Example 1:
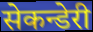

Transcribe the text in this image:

सेकन्डेरी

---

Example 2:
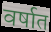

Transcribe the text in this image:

वर्षात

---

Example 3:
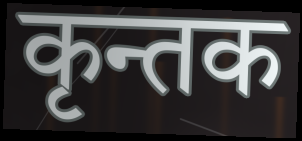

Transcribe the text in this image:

कृन्तक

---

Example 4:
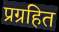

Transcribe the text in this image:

प्रग्रहित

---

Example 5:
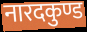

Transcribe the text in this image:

नारदकुण्ड